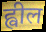
ह्वील